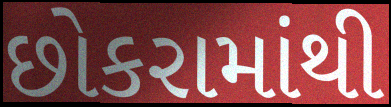
છોકરામાંથી